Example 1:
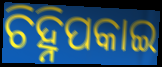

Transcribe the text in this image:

ଚିହ୍ନିପକାଇ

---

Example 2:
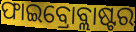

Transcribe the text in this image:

ଫାଇବ୍ରୋବ୍ଲାଷ୍ଟର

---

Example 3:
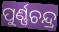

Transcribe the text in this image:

ପୁର୍ଣ୍ଣଚନ୍ଦ୍ର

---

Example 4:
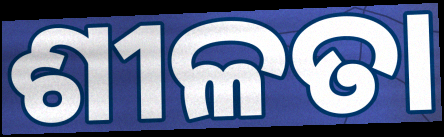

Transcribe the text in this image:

ଶୀଳତା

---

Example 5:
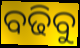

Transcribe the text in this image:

ବଢିବୁ